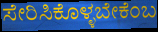
ಸೇರಿಸಿಕೊಳ್ಳಬೇಕೆಂಬ